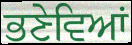
ਭਣੇਵਿਆਂ